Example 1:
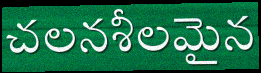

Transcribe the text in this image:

చలనశీలమైన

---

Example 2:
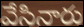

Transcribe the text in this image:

వేసినారు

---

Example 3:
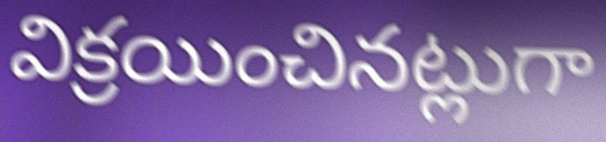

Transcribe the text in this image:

విక్రయించినట్లుగా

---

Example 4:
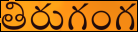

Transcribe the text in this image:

తిరుగంగ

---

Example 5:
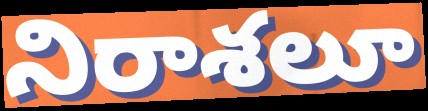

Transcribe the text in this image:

నిరాశలూ